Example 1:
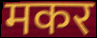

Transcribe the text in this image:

मकर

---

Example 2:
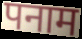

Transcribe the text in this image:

पनाम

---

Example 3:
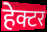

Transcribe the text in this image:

हेक्टर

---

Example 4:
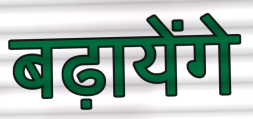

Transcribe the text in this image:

बढ़ायेंगे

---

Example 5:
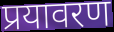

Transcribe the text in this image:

प्रयावरण